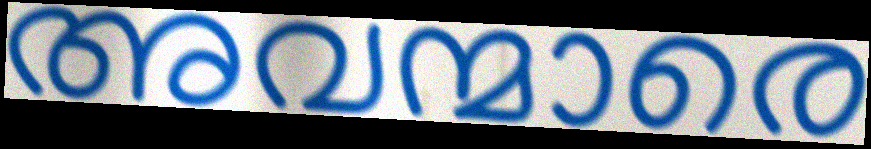
അവന്മാരെ